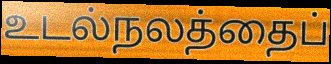
உடல்நலத்தைப்